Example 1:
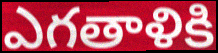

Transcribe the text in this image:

ఎగతాళికి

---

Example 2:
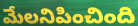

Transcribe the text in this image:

మేలనిపించింది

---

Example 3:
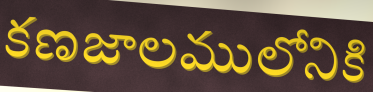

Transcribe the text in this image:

కణజాలములోనికి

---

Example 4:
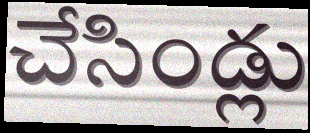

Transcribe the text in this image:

చేసిండ్లు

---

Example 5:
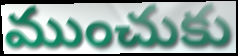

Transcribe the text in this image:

ముంచుకు